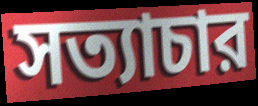
সত্যাচার